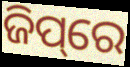
ଜିପ୍‌ରେ